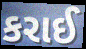
કરાઈ